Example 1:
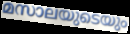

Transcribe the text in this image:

മസാലയുടെയും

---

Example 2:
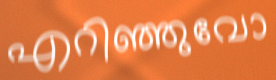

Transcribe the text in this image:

എറിഞ്ഞുവോ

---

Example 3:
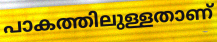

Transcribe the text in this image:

പാകത്തിലുള്ളതാണ്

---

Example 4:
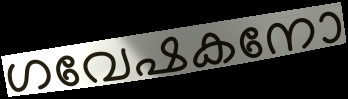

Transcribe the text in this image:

ഗവേഷകനോ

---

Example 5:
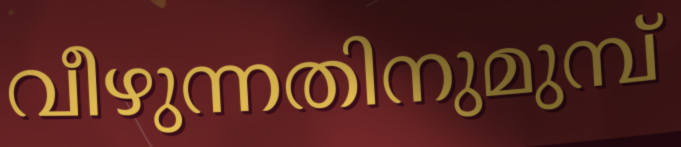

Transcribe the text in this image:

വീഴുന്നതിനുമുമ്പ്